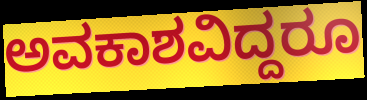
ಅವಕಾಶವಿದ್ದರೂ